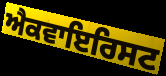
ਐਕਵਾਇਰਿਸਟ